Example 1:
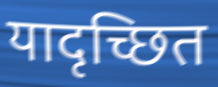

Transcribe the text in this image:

यादृच्छित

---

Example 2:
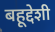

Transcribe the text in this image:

बहूद्देशी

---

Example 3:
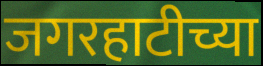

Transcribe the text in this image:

जगरहाटीच्या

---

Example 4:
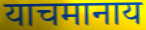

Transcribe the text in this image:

याचमानाय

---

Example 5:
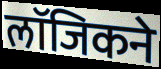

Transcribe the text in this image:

लॉजिकने